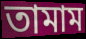
তামাম